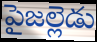
పైజల్లెడు